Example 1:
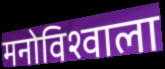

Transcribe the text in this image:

मनोविश्वाला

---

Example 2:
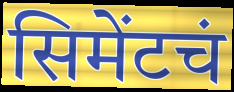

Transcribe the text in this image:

सिमेंटचं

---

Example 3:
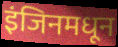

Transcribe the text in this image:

इंजिनमधून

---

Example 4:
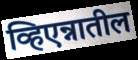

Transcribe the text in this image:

व्हिएन्नातील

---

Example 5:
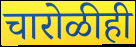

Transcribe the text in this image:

चारोळीही